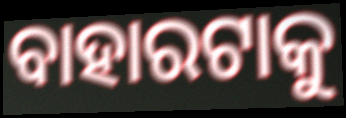
ବାହାରଟାକୁ